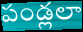
పండ్లలా